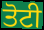
ਤੋਟੀ